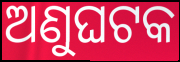
ଅଣୁଘଟକ